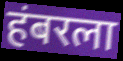
हंबरला